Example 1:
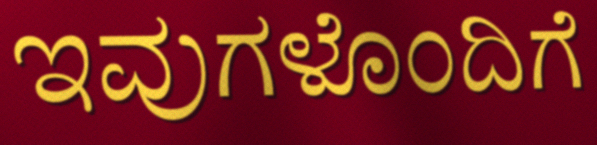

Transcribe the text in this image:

ಇವುಗಳೊಂದಿಗೆ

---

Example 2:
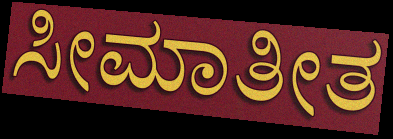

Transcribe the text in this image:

ಸೀಮಾತೀತ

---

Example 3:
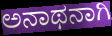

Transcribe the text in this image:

ಅನಾಥನಾಗಿ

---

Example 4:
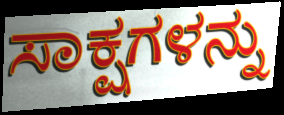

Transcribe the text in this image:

ಸಾಕ್ಷಗಳನ್ನು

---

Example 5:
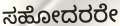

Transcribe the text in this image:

ಸಹೋದರರೇ